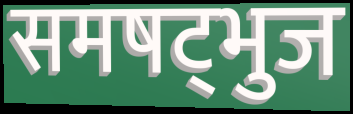
समषट्भुज